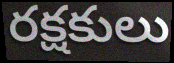
రక్షకులు